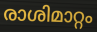
രാശിമാറ്റം